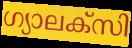
ഗ്യാലക്സി